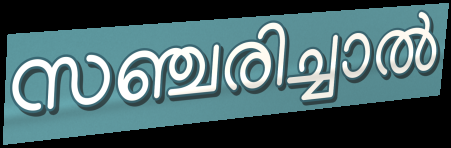
സഞ്ചരിച്ചാൽ